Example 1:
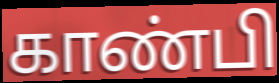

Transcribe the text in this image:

காண்பி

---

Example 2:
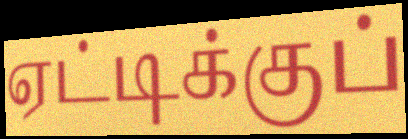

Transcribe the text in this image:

ஏட்டிக்குப்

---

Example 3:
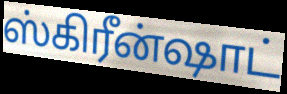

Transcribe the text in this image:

ஸ்கிரீன்ஷாட்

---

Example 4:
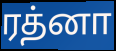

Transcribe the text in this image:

ரத்னா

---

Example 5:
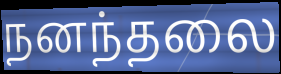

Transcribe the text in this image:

நனந்தலை